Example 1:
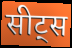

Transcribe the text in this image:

सीट्स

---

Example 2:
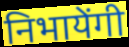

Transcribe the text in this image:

निभायेंगी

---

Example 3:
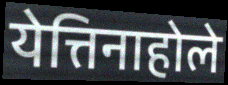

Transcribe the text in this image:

येत्तिनाहोले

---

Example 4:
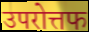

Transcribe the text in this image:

उपरोत्तफ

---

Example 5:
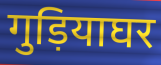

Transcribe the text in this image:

गुड़ियाघर